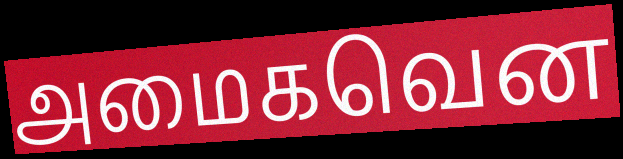
அமைகவென